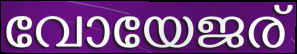
വോയേജര്